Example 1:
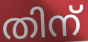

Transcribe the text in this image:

തിന്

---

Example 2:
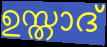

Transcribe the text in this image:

ഉസ്താദ്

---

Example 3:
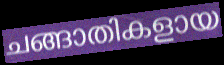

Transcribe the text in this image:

ചങ്ങാതികളായ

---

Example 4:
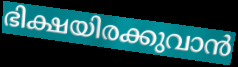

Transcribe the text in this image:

ഭിക്ഷയിരക്കുവാൻ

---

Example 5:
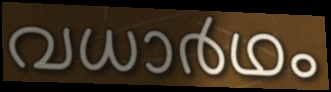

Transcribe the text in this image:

വധാർഥം